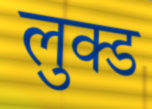
लुक्ड